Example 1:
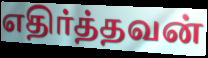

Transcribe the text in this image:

எதிர்த்தவன்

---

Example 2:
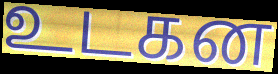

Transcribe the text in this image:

உடகன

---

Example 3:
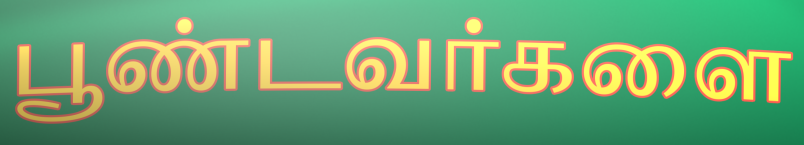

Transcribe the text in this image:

பூண்டவர்களை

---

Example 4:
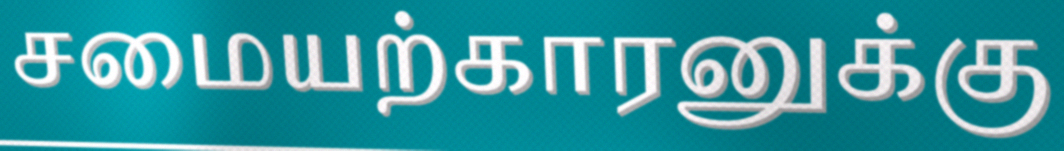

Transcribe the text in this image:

சமையற்காரனுக்கு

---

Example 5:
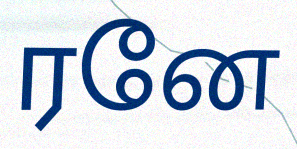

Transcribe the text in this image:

ரனே